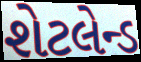
શેટલેન્ડ